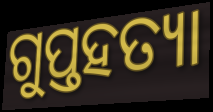
ଗୁପ୍ତହତ୍ୟା